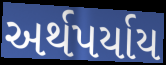
અર્થપર્યાય